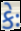
કેઃ